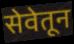
सेवेतून